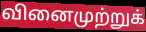
வினைமுற்றுக்